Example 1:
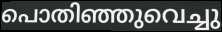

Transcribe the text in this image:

പൊതിഞ്ഞുവെച്ചു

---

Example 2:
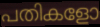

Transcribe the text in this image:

പതികളോ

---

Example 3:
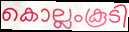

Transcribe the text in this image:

കൊല്ലംകൂടി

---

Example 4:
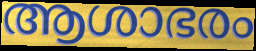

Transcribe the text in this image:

ആശാഭരം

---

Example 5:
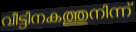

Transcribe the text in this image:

വീട്ടിനകത്തുനിന്ന്